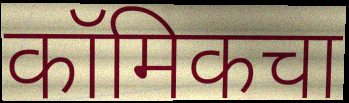
कॉमिकचा